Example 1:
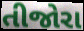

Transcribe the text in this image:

તીજોરા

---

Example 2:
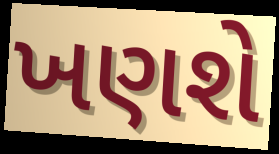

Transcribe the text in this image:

ખણશે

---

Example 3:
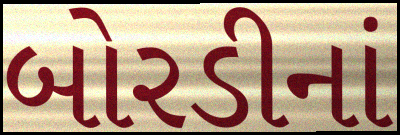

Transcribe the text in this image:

બોરડીનાં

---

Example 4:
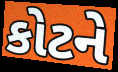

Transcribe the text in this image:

કોટને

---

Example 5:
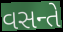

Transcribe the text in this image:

વસન્તે